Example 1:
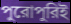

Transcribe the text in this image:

পুরোপুরিই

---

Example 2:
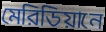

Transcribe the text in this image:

মেরিডিয়ানে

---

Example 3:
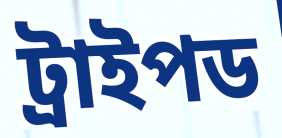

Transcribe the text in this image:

ট্রাইপড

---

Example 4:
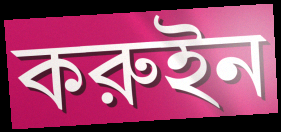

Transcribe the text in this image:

করুইন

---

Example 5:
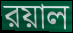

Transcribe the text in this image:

রয়াল